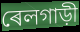
ৰেলগাড়ী